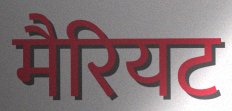
मैरियट